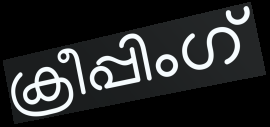
ക്രീപ്പിംഗ്